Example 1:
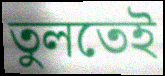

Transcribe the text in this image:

তুলতেই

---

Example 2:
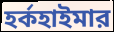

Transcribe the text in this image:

হর্কহাইমার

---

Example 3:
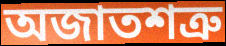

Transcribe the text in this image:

অজাতশত্রু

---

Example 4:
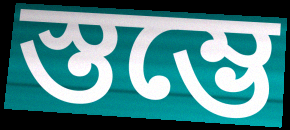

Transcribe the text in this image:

স্তম্ভে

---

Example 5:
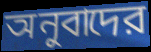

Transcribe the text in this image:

অনুবাদের